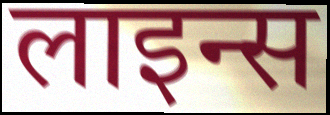
लाइन्स